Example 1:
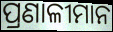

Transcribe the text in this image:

ପ୍ରଣାଳୀମାନ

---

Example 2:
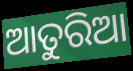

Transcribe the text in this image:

ଆତୁରିଆ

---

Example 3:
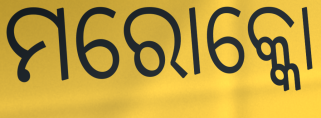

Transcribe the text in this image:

ମରୋକ୍କୋ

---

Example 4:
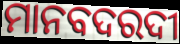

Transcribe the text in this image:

ମାନବଦରଦୀ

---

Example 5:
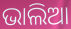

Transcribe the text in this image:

ଭାଲିଆ